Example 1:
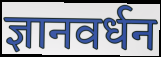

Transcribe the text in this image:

ज्ञानवर्धन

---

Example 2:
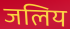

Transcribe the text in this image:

जलिय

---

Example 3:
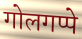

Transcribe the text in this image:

गोलगप्पे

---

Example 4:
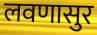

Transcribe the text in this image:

लवणासुर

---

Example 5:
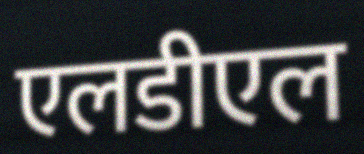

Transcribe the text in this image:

एलडीएल